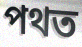
পথত